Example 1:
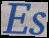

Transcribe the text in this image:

Es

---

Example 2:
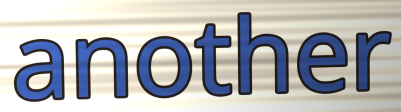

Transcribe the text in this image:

another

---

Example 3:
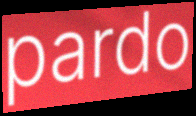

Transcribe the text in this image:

pardo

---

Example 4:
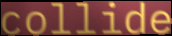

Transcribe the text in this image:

collide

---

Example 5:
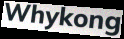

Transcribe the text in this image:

Whykong